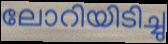
ലോറിയിടിച്ചു